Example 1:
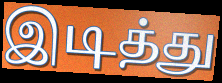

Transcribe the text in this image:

இடித்து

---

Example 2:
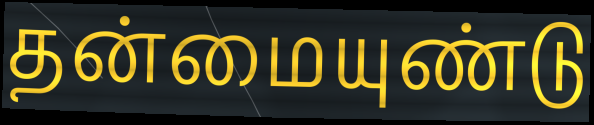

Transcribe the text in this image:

தன்மையுண்டு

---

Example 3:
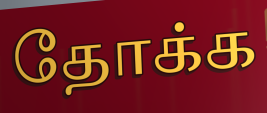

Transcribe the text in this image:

தோக்க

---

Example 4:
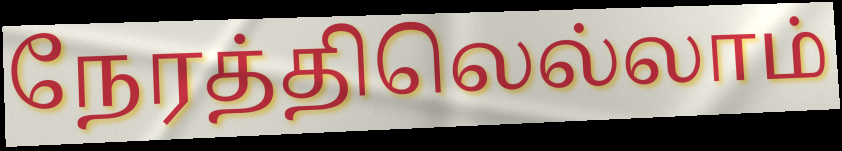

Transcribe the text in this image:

நேரத்திலெல்லாம்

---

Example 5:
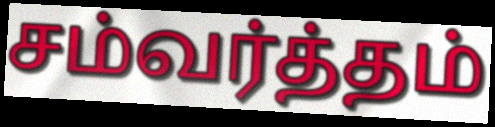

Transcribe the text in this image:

சம்வர்த்தம்